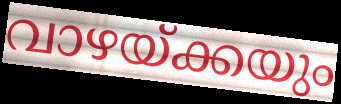
വാഴയ്ക്കയും